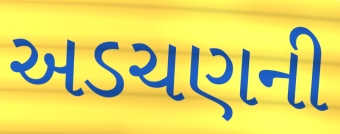
અડચણની